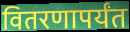
वितरणापर्यंत